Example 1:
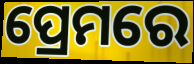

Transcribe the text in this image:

ପ୍ରେମରେ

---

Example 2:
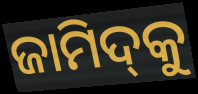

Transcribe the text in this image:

ଜାମିଦ୍‌କୁ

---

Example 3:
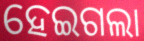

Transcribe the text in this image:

ହେଇଗଲା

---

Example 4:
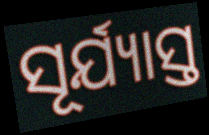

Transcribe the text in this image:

ସୂର୍ଯ୍ୟାସ୍ତ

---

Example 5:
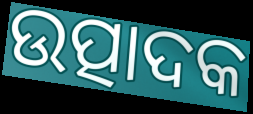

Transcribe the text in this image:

ଉତ୍ପାଦକ